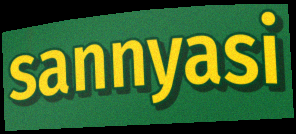
sannyasi